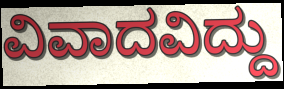
ವಿವಾದವಿದ್ದು